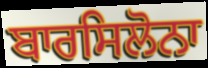
ਬਾਰਸਿਲੋਨਾ